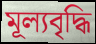
মূল্যবৃদ্ধি